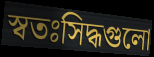
স্বতঃসিদ্ধগুলো